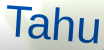
Tahu